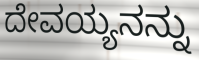
ದೇವಯ್ಯನನ್ನು